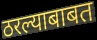
ठरल्याबाबत